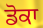
ਡੋਕਾ